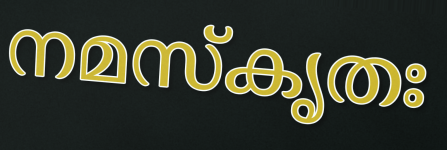
നമസ്കൃതഃ